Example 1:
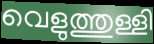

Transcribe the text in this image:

വെളുത്തുള്ളി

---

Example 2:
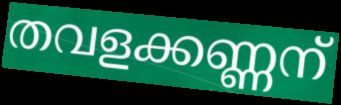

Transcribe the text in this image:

തവളക്കണ്ണന്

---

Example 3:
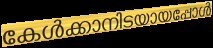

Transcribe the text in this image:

കേൾക്കാനിടയായപ്പോൾ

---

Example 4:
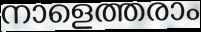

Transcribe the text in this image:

നാളെത്തരാം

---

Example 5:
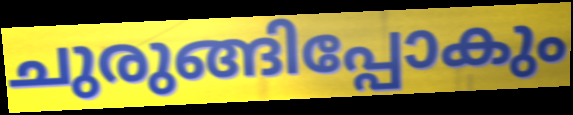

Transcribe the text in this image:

ചുരുങ്ങിപ്പോകും